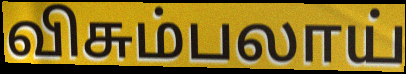
விசும்பலாய்